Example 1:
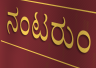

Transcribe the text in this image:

ನಂಟರುಂ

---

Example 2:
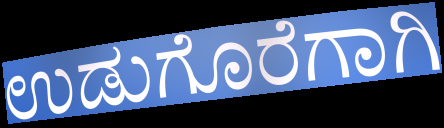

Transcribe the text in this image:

ಉಡುಗೊರೆಗಾಗಿ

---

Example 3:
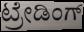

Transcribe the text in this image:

ಟ್ರೇಡಿಂಗ್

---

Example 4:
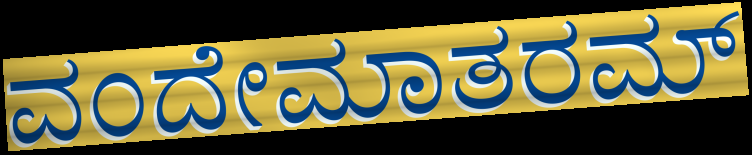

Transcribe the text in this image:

ವಂದೇಮಾತರಮ್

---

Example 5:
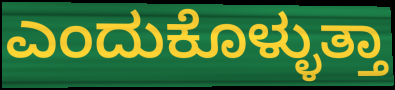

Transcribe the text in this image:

ಎಂದುಕೊಳ್ಳುತ್ತಾ